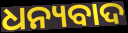
ଧନ୍ୟବାଦ